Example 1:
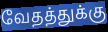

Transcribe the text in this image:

வேதத்துக்கு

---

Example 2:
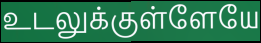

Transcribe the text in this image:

உடலுக்குள்ளேயே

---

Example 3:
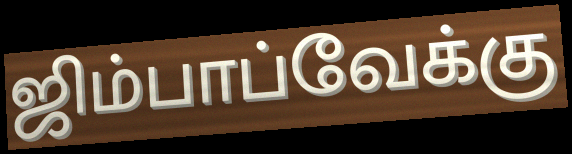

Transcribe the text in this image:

ஜிம்பாப்வேக்கு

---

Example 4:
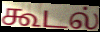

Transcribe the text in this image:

கூடல்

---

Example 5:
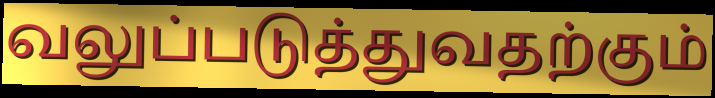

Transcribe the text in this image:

வலுப்படுத்துவதற்கும்